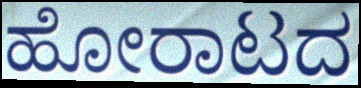
ಹೋರಾಟದ